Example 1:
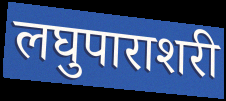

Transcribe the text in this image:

लघुपाराशरी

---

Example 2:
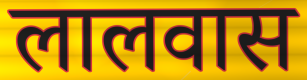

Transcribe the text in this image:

लालवास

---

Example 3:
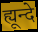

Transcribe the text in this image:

ह्यून्दे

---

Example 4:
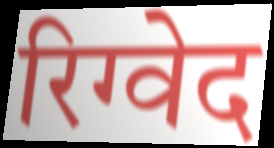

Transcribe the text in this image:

रिग्वेद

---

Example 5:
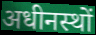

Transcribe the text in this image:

अधीनस्थों